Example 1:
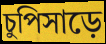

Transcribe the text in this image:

চুপিসাড়ে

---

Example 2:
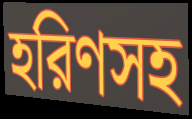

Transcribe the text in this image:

হরিণসহ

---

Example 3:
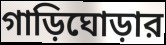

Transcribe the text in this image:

গাড়িঘোড়ার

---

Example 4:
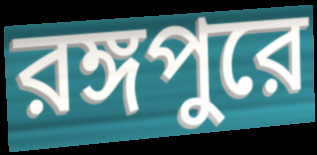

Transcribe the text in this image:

রঙ্গপুরে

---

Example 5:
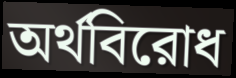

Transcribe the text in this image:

অর্থবিরোধ